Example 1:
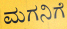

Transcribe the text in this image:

ಮಗನಿಗೆ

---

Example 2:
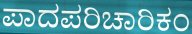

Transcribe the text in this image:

ಪಾದಪರಿಚಾರಿಕಂ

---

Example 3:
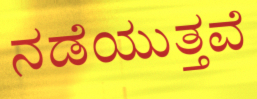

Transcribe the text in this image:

ನಡೆಯುತ್ತವೆ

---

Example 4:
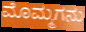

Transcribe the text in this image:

ಮೊಮ್ಮಗನು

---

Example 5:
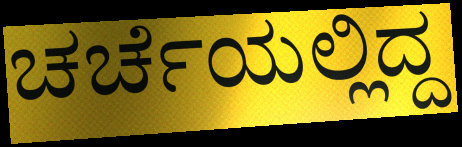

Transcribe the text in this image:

ಚರ್ಚೆಯಲ್ಲಿದ್ದ